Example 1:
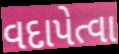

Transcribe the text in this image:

વદાપેત્વા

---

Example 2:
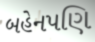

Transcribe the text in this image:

બહેનપણિ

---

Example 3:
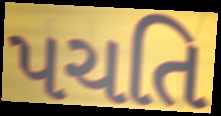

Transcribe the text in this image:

પચતિ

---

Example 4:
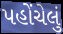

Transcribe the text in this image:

પહોંચેલું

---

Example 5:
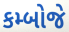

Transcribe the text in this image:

કમ્બોજે